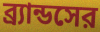
ব্র্যান্ডসের